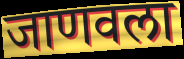
जाणवला